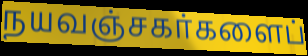
நயவஞ்சகர்களைப்